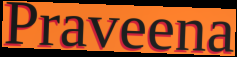
Praveena